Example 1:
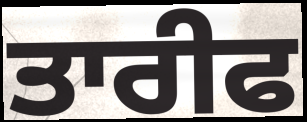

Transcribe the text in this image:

ਤਾਰੀਫ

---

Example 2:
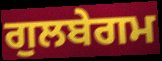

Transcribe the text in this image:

ਗੁਲਬੇਗਮ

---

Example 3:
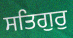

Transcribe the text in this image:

ਸਤਿਗੁਰੁ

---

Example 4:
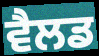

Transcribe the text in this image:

ਵੈਲਡ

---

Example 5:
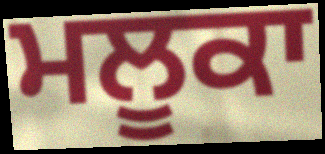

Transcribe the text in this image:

ਮਲੂਕਾ